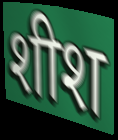
शीश